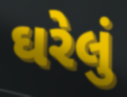
ઘરેલું